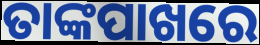
ତାଙ୍କପାଖରେ